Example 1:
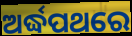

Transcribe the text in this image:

ଅର୍ଦ୍ଧପଥରେ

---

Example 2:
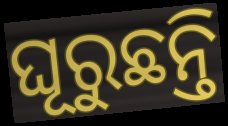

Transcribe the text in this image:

ଘୂରୁଛନ୍ତି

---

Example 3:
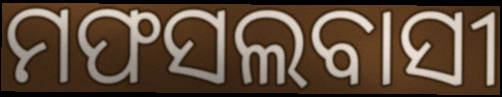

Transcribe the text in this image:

ମଫସଲବାସୀ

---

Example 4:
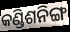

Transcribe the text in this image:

କଣ୍ଡିଶନିଙ୍ଗ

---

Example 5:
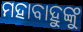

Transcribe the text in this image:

ମହାବାହୁଙ୍କୁ